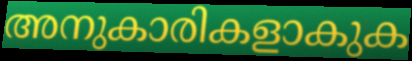
അനുകാരികളാകുക